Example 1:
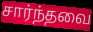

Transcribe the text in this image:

சார்ந்தவை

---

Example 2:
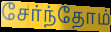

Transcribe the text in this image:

சேர்ந்தோம்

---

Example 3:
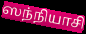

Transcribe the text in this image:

ஸந்நியாசி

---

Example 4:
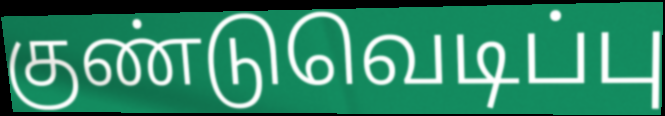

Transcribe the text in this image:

குண்டுவெடிப்பு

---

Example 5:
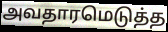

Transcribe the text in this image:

அவதாரமெடுத்த